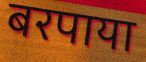
बरपाया